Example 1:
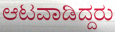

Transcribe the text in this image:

ಆಟವಾಡಿದ್ದರು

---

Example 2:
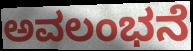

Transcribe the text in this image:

ಅವಲಂಭನೆ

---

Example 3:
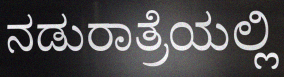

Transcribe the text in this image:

ನಡುರಾತ್ರೆಯಲ್ಲಿ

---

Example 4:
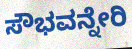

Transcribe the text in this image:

ಸೌಭವನ್ನೇರಿ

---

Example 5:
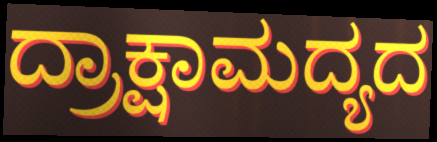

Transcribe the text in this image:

ದ್ರಾಕ್ಷಾಮದ್ಯದ